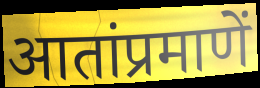
आतांप्रमाणें